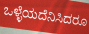
ಒಳ್ಳೆಯದೆನಿಸಿದರೂ